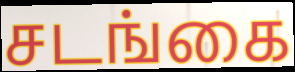
சடங்கை